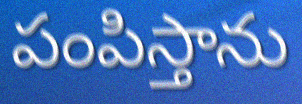
పంపిస్తాను